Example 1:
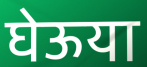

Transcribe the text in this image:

घेऊया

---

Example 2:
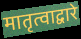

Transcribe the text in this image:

मातृत्वाद्वारे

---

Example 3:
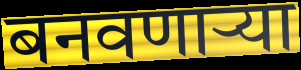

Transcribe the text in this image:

बनवणार्‍या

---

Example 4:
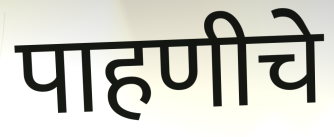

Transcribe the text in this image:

पाहणीचे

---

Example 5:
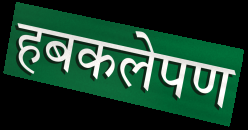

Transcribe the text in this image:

हबकलेपण